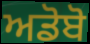
ਅਡੋਬੋ